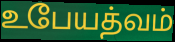
உபேயத்வம்